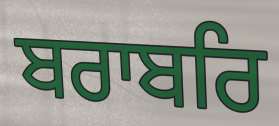
ਬਰਾਬਰਿ